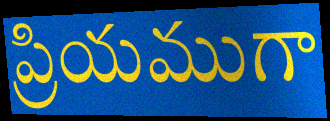
ప్రియముగా